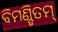
ବିମଣ୍ଡିତମ୍